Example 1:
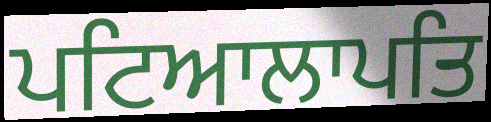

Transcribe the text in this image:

ਪਟਿਆਲਾਪਤਿ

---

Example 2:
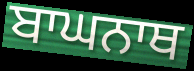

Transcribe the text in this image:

ਬਾਘਨਾਥ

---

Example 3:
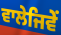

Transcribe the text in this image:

ਵਾਲੇਜਿਵੇਂ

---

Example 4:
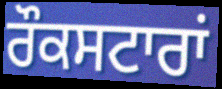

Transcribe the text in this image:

ਰੌਕਸਟਾਰਾਂ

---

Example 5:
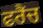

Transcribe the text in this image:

ਫਰੈਂਚ